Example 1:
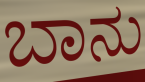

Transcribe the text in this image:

ಬಾನು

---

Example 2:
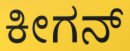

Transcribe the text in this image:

ಕೀಗನ್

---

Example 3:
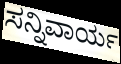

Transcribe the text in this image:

ಸನ್ನಿವಾರ್ಯ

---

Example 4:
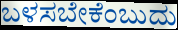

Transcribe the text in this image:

ಬಳಸಬೇಕೆಂಬುದು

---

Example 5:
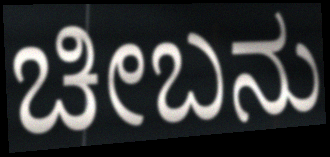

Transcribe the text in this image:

ಚೀಬನು